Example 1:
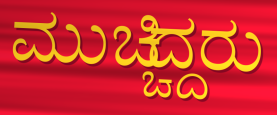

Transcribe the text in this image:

ಮುಚ್ಚಿದ್ದರು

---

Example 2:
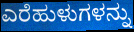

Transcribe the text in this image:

ಎರೆಹುಳುಗಳನ್ನು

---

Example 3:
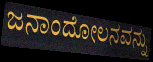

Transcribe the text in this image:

ಜನಾಂದೋಲನವನ್ನು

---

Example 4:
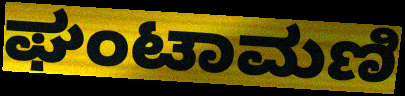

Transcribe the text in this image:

ಘಂಟಾಮಣಿ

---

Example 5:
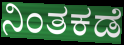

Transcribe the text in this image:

ನಿಂತಕಡೆ